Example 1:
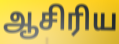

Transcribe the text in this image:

ஆசிரிய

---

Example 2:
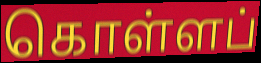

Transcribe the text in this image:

கொள்ளப்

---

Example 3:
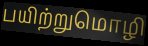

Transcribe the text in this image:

பயிற்றுமொழி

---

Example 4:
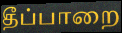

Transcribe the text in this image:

தீப்பாறை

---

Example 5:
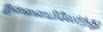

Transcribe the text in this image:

இன்னையிலேர்ந்து